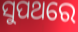
ସୁପଥରେ